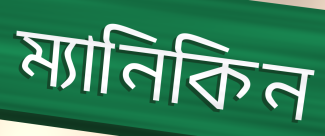
ম্যানিকিন